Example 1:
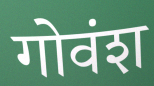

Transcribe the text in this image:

गोवंश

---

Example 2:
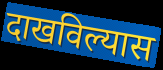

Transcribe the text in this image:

दाखविल्यास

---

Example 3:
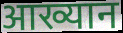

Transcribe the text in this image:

आख्यान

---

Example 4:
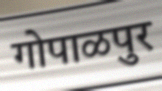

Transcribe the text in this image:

गोपाळपुर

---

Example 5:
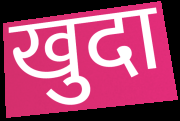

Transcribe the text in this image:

खुदा